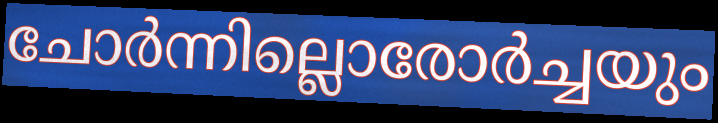
ചോർന്നില്ലൊരോർച്ചയും